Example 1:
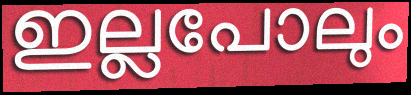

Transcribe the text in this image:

ഇല്ലപോലും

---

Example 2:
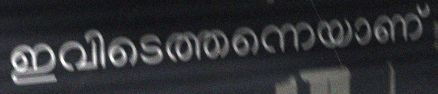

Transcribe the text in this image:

ഇവിടെത്തന്നെയാണ്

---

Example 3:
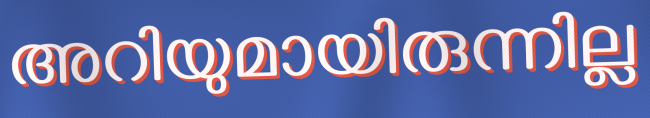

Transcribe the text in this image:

അറിയുമായിരുന്നില്ല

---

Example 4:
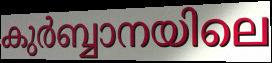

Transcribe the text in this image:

കുർബ്ബാനയിലെ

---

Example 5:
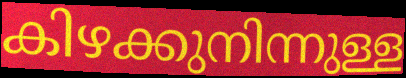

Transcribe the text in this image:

കിഴക്കുനിന്നുള്ള